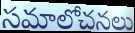
సమాలోచనలు